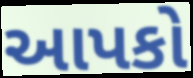
આપકો